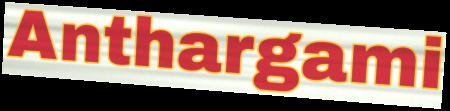
Anthargami